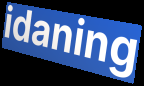
idaning